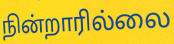
நின்றாரில்லை